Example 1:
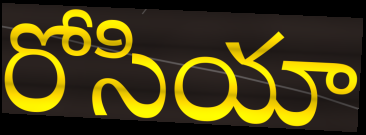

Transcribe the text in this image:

రోసియా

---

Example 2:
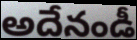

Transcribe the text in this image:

అదేనండీ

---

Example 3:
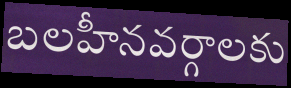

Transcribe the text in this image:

బలహీనవర్గాలకు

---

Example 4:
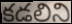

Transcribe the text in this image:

కడలిని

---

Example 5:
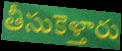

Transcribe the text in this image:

తీసుకెళ్తారు